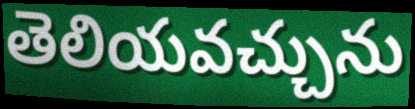
తెలియవచ్చును